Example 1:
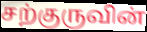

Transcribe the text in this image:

சற்குருவின்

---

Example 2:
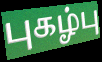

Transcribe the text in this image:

புகழ்பு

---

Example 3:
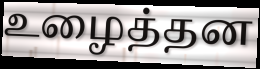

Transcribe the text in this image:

உழைத்தன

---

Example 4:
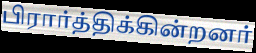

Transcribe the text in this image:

பிரார்த்திக்கின்றனர்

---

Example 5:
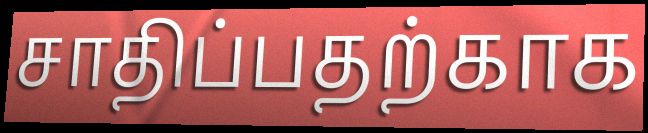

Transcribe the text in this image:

சாதிப்பதற்காக